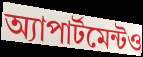
অ্যাপার্টমেন্টও